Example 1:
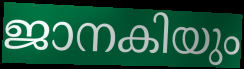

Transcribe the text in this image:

ജാനകിയും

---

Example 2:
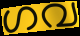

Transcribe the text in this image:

ഗവ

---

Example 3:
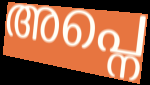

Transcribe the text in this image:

അപ്നെ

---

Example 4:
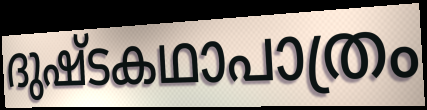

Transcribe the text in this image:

ദുഷ്ടകഥാപാത്രം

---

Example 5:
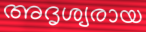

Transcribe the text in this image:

അദൃശ്യരായ